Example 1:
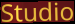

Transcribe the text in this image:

Studio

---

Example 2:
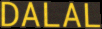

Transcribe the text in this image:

DALAL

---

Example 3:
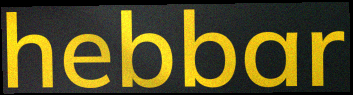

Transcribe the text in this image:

hebbar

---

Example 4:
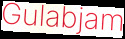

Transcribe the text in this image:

Gulabjam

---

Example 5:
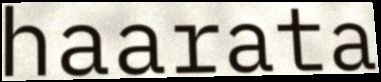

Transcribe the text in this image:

haarata